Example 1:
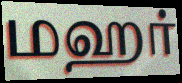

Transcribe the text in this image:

மஹர்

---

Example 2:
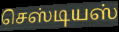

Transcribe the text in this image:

செஸ்டியஸ்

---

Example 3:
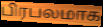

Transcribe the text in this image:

பிரபலமாக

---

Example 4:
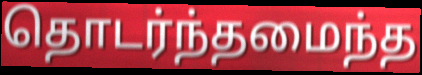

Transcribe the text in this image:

தொடர்ந்தமைந்த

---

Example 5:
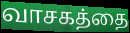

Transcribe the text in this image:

வாசகத்தை